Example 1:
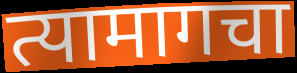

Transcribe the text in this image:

त्यामागचा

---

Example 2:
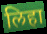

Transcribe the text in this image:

लिहा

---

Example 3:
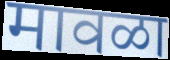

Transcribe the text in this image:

मावळा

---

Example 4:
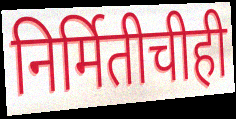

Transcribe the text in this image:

निर्मितीचीही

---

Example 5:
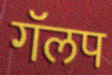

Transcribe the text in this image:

गॅलप